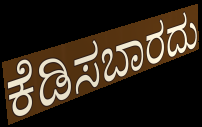
ಕೆಡಿಸಬಾರದು